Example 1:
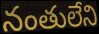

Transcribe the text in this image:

నంతులేని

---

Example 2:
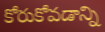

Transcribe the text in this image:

కోరుకోవడాన్ని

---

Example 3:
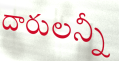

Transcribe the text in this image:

దారులన్నీ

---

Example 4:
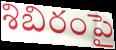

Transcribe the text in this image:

శిబిరంపై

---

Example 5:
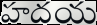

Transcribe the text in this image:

హదయ